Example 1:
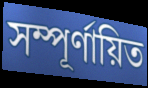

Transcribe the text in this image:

সম্পূর্ণায়িত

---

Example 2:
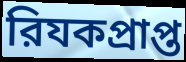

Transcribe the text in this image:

রিযকপ্রাপ্ত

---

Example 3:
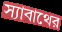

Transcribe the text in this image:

স্যাবাথের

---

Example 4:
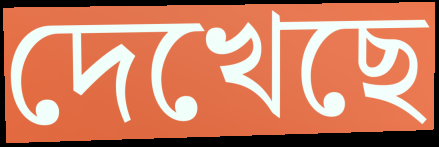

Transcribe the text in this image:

দেখেছে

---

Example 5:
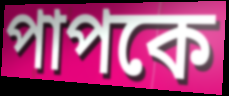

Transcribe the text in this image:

পাপকে